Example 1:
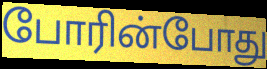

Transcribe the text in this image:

போரின்போது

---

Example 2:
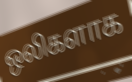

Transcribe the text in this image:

ஒலிகளாக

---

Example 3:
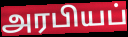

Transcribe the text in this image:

அரபியப்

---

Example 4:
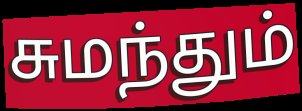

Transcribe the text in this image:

சுமந்தும்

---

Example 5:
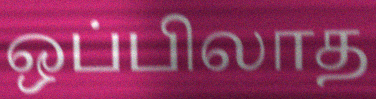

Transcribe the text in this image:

ஒப்பிலாத